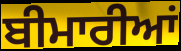
ਬੀਮਾਰੀਆਂ